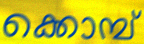
ക്കൊമ്പ്